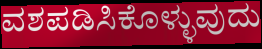
ವಶಪಡಿಸಿಕೊಳ್ಳುವುದು